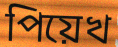
পিয়েখ